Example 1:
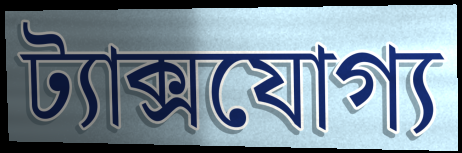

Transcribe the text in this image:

ট্যাক্সযোগ্য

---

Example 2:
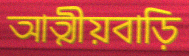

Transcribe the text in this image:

আত্মীয়বাড়ি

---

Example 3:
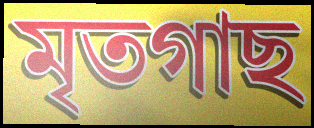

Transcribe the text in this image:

মৃতগাছ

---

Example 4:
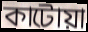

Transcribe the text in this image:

কাটোয়া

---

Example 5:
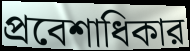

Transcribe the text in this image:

প্রবেশাধিকার